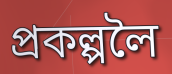
প্ৰকল্পলৈ